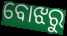
ବୋଝରୁ